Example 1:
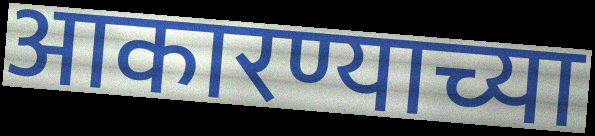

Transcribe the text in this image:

आकारण्याच्या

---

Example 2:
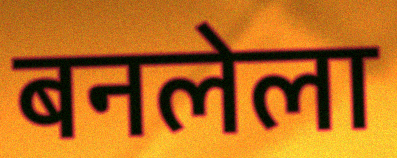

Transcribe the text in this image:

बनलेला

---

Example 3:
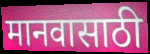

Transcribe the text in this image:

मानवासाठी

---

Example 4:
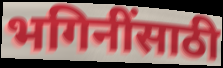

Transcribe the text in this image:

भगिनींसाठी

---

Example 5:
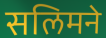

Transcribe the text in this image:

सलिमने